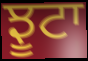
ਝੂਟਾ